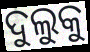
ଦୁଲୁକୁ